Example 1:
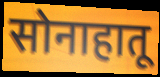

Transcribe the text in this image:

सोनाहातू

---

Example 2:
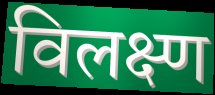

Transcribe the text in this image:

विलक्ष्ण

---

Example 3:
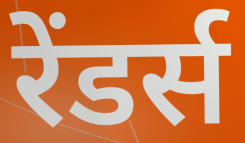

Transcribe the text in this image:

रेंडर्स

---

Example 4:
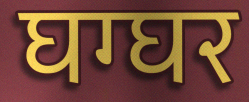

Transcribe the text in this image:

घग्घर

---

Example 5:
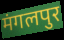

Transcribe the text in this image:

मंगलपुर